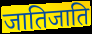
जातिजाति